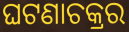
ଘଟଣାଚକ୍ରର